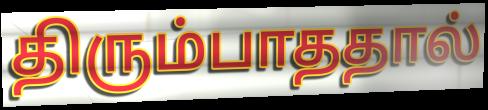
திரும்பாததால்